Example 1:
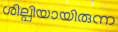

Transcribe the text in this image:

ശില്പിയായിരുന്ന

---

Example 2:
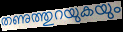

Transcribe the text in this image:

തണുത്തുറയുകയും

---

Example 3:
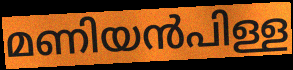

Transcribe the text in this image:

മണിയൻപിള്ള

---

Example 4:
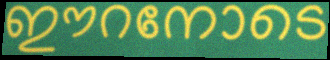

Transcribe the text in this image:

ഈറനോടെ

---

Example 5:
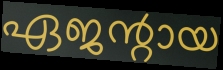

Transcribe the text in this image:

ഏജന്റായ